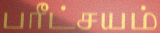
பரீட்சயம்